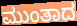
ಮುಂತಾದ